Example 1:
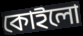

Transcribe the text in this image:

কোইলো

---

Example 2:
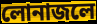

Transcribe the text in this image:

লোনাজলে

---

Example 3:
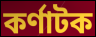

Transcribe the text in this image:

কর্ণাটক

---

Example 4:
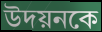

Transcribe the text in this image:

উদয়নকে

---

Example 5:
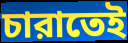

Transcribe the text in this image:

চারাতেই